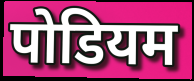
पोडियम